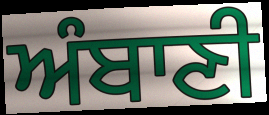
ਅੰਬਾਣੀ